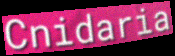
Cnidaria